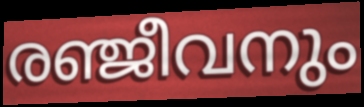
രഞ്ജീവനും